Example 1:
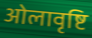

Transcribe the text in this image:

ओलावृष्टि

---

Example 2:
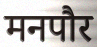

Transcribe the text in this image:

मनपौर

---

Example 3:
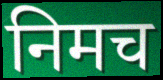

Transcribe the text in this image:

निमच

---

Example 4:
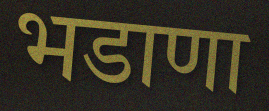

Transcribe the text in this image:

भडाणा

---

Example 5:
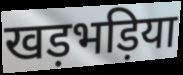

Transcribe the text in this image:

खड़भड़िया